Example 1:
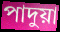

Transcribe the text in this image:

পাদুয়া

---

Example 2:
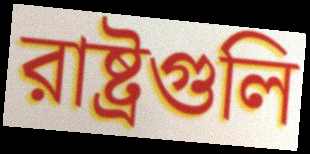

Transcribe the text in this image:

রাষ্ট্রগুলি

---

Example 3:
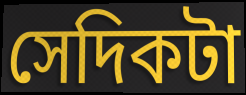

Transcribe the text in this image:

সেদিকটা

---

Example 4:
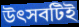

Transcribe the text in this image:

উৎসবটিই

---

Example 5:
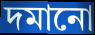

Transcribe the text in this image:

দমানো